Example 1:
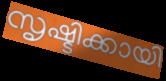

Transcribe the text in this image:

സൃഷ്ടിക്കായി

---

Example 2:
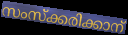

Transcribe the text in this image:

സംസ്ക്കരിക്കാന്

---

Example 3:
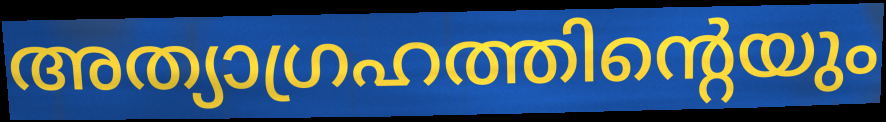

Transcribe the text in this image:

അത്യാഗ്രഹത്തിന്റെയും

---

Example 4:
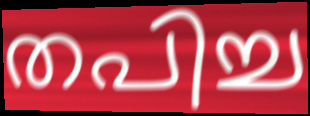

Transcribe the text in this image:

തപിച്ച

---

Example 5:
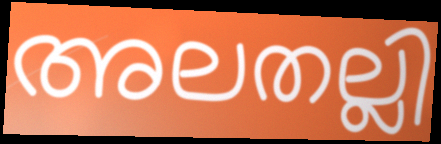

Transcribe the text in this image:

അലതല്ലി